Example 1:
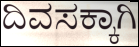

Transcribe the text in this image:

ದಿವಸಕ್ಕಾಗಿ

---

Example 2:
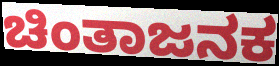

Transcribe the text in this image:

ಚಿಂತಾಜನಕ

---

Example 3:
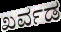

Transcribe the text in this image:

ಖರ್ವಡ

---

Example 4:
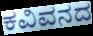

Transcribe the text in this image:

ಕವಿವನದ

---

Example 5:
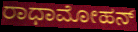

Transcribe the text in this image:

ರಾಧಾಮೋಹನ್